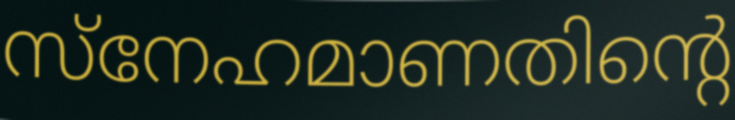
സ്നേഹമാണതിന്റെ